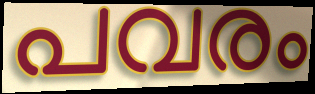
പവരം